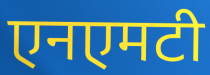
एनएमटी